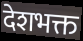
देशभक्त